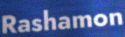
Rashamon